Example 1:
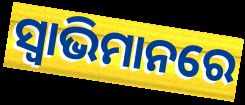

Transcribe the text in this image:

ସ୍ୱାଭିମାନରେ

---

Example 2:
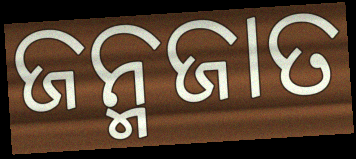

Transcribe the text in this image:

ଜନ୍ମଜାତ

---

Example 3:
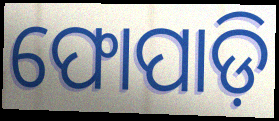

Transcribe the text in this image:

ଫୋପାଡ଼ି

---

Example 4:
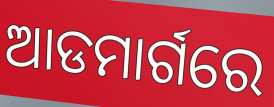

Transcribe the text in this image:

ଆଡମାର୍ଗରେ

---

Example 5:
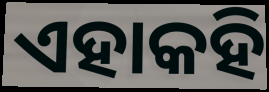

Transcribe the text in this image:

ଏହାକହି